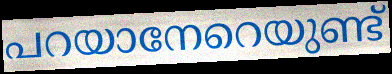
പറയാനേറെയുണ്ട്